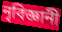
নৃবিজ্ঞানী